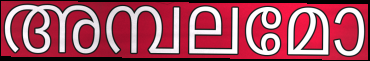
അമ്പലമോ